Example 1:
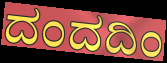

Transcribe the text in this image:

ದಂದದಿಂ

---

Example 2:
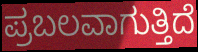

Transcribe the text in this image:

ಪ್ರಬಲವಾಗುತ್ತಿದೆ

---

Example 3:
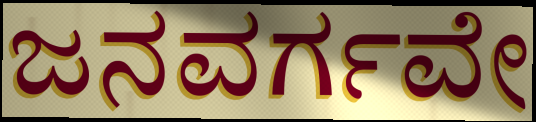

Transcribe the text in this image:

ಜನವರ್ಗವೇ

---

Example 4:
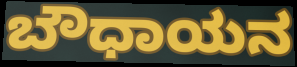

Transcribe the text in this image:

ಬೌಧಾಯನ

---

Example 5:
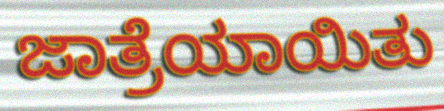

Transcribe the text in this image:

ಜಾತ್ರೆಯಾಯಿತು